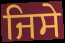
ਜਿਸੇ